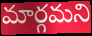
మార్గమని